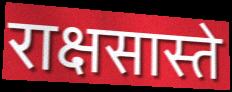
राक्षसास्ते